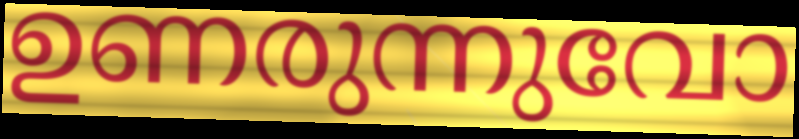
ഉണരുന്നുവോ